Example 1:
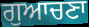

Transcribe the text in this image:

ਗੁਆਚਣਾ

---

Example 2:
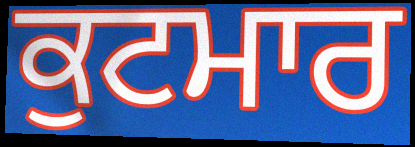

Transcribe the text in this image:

ਕੁਟਮਾਰ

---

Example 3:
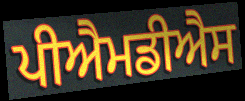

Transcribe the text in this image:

ਪੀਐਮਡੀਐਸ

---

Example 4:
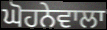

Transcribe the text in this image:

ਘੋਹਨੇਵਾਲਾ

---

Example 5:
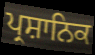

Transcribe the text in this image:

ਪ੍ਰਸ਼ਾਨਿਕ